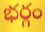
భర్గం